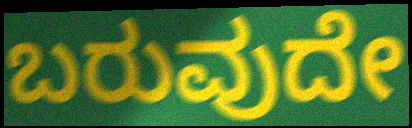
ಬರುವುದೇ